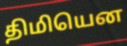
திமியென